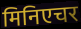
मिनिएचर